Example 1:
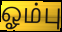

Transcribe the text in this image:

ஓம்பு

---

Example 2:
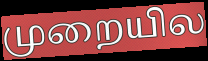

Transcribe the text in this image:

முறையில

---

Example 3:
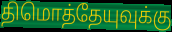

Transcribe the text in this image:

திமொத்தேயுவுக்கு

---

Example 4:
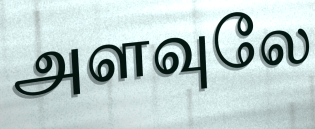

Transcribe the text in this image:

அளவுலே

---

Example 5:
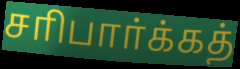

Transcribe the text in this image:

சரிபார்க்கத்